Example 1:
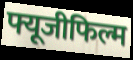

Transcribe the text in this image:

फ्यूजीफिल्म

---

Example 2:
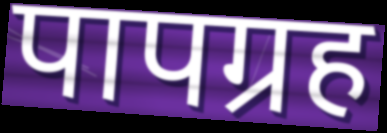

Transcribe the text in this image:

पापग्रह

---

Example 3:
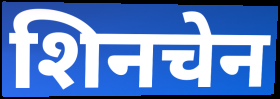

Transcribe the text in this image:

शिनचेन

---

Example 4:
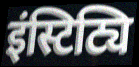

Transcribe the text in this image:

इंस्टिट्यि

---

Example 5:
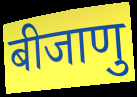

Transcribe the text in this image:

बीजाणु